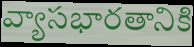
వ్యాసభారతానికి